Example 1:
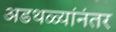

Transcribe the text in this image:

अडथळ्यांनंतर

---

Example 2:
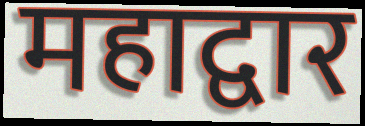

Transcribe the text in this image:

महाद्वार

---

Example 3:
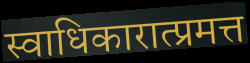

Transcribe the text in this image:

स्वाधिकारात्प्रमत्त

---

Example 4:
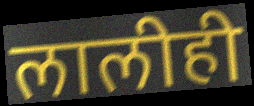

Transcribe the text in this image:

लालीही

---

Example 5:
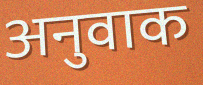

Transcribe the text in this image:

अनुवाक